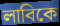
লাবিকে